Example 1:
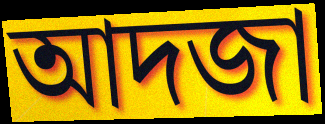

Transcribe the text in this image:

আদজা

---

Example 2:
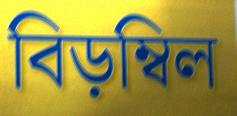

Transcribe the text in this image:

বিড়ম্বিল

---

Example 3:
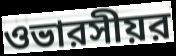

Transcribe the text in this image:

ওভারসীয়র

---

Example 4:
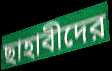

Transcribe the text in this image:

ছাহাবীদের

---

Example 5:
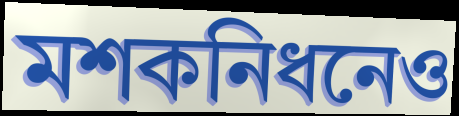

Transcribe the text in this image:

মশকনিধনেও